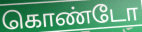
கொண்டோ